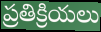
ప్రతిక్రియలు